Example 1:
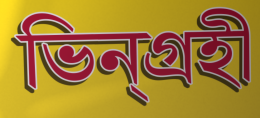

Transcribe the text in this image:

ভিন্গ্রহী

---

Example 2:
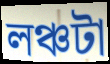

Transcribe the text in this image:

লঞ্চটা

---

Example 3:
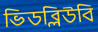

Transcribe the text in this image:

ভিডব্লিউবি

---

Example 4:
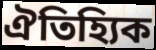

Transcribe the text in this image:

ঐতিহ্যিক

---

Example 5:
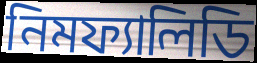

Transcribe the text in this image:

নিমফ্যালিডি